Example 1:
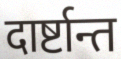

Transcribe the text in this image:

दार्ष्टान्त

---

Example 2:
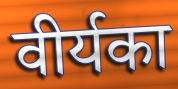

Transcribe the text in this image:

वीर्यका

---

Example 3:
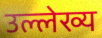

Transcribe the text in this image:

उल्लेख्य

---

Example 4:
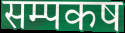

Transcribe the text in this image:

सम्पकष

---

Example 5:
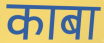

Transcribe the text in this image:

काबा